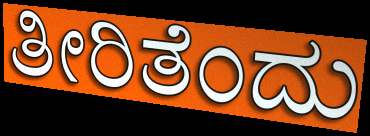
ತೀರಿತೆಂದು